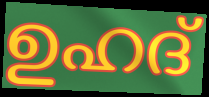
ഉഹദ്